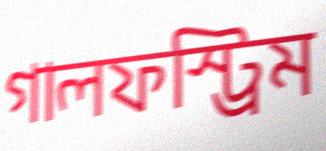
গালফস্ট্রিম